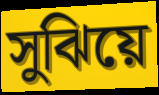
সুঝিয়ে